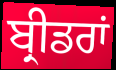
ਬ੍ਰੀਡਰਾਂ